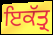
ਇਕੱਤ੍ਰ